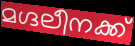
മഗ്ദലീനക്ക്